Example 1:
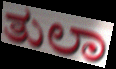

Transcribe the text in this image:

ತುಲಾ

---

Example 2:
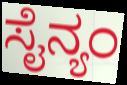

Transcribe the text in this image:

ಸೈನ್ಯಂ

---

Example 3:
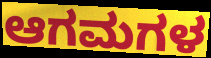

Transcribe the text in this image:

ಆಗಮಗಳ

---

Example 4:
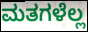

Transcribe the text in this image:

ಮತಗಳೆಲ್ಲ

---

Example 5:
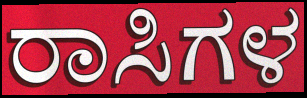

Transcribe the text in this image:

ರಾಸಿಗಳ